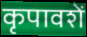
कृपावशें